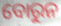
ବୋରୁନ